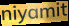
niyamit